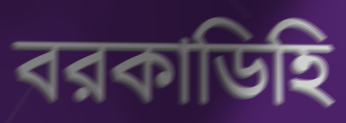
বরকাডিহি